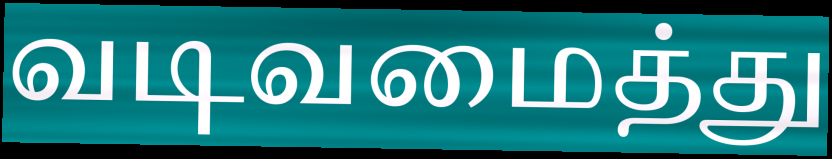
வடிவமைத்து